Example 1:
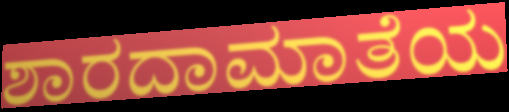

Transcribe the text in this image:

ಶಾರದಾಮಾತೆಯ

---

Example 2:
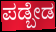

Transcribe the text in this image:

ಪಡ್ಬೇಡ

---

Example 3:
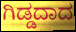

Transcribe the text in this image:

ಗಿಡ್ಡದಾದ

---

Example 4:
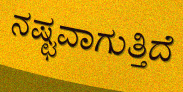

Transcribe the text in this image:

ನಷ್ಟವಾಗುತ್ತಿದೆ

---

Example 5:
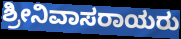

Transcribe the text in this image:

ಶ್ರೀನಿವಾಸರಾಯರು